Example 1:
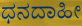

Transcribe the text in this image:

ಧನದಾಹೀ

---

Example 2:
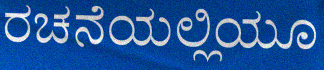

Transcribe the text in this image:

ರಚನೆಯಲ್ಲಿಯೂ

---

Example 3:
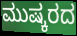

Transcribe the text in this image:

ಮುಷ್ಕರದ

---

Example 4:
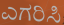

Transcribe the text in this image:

ಎಗರಿಸಿ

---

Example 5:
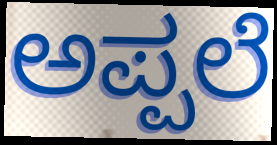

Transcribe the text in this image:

ಅಪ್ಪಲೆ